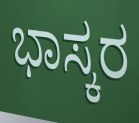
ಭಾಸ್ಕರ